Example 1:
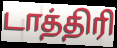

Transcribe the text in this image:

டாத்திரி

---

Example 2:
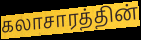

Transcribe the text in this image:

கலாசாரத்தின்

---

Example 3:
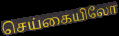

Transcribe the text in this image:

செய்கையிலோ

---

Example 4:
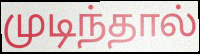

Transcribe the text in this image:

முடிந்தால்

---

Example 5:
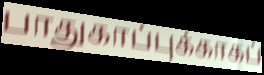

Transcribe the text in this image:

பாதுகாப்புக்காகப்